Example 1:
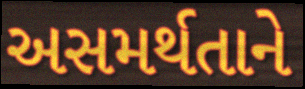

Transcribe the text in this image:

અસમર્થતાને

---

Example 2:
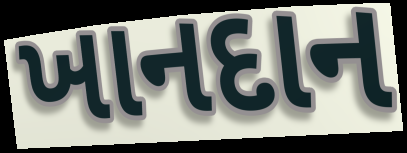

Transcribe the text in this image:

ખાનદાન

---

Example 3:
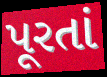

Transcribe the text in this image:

પૂરતાં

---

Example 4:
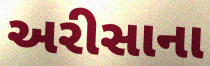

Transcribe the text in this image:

અરીસાના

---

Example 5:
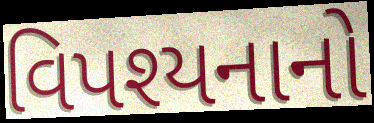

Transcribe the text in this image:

વિપશ્યનાનો